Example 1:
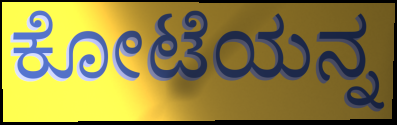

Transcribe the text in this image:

ಕೋಟೆಯನ್ನ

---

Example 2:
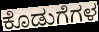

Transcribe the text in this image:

ಕೊಡುಗೆಗಳ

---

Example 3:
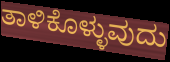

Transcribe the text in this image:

ತಾಳಿಕೊಳ್ಳುವುದು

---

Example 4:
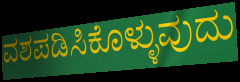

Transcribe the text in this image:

ವಶಪಡಿಸಿಕೊಳ್ಳುವುದು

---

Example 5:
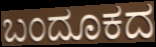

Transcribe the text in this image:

ಬಂದೂಕದ